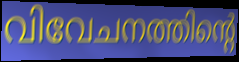
വിവേചനത്തിന്റെ